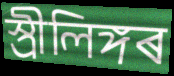
স্ত্ৰীলিঙ্গৰ